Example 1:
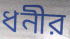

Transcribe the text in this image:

ধনীর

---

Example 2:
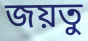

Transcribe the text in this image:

জয়তু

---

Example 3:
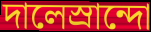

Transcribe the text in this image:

দালেস্রান্দো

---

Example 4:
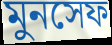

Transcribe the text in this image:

মুনসেফ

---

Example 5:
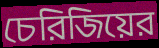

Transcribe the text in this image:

চেরিজিয়ের